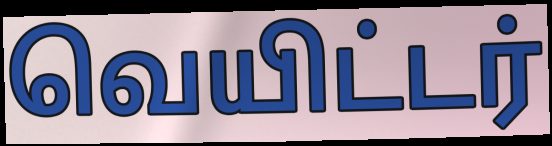
வெயிட்டர்